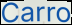
Carro